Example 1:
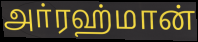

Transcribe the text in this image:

அர்ரஹ்மான்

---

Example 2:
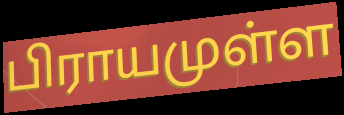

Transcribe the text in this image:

பிராயமுள்ள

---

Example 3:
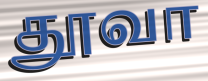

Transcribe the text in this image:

தூவா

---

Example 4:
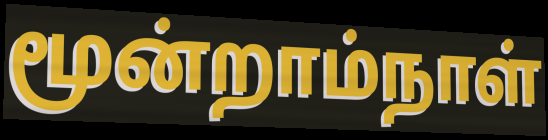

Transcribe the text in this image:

மூன்றாம்நாள்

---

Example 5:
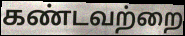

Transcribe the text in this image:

கண்டவற்றை